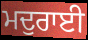
ਮਦੁਰਾਈ